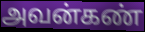
அவன்கண்